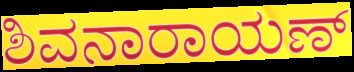
ಶಿವನಾರಾಯಣ್